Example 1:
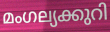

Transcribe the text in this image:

മംഗല്യക്കുറി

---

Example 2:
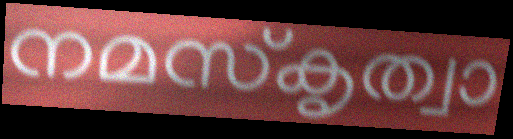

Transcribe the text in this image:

നമസ്കൃത്വാ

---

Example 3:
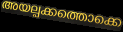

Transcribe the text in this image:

അയല്പക്കത്തൊക്കെ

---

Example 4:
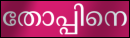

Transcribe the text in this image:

തോപ്പിനെ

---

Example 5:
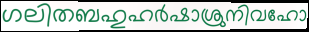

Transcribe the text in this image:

ഗലിതബഹുഹർഷാശ്രുനിവഹോ